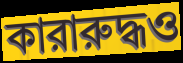
কারারুদ্ধও